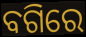
ବଗିରେ